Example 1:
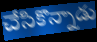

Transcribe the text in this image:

చేసికొన్నాడు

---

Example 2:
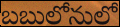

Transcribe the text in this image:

బబులోనులో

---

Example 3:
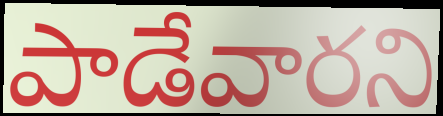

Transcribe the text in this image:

పాడేవారని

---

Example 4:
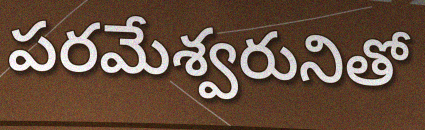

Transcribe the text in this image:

పరమేశ్వరునితో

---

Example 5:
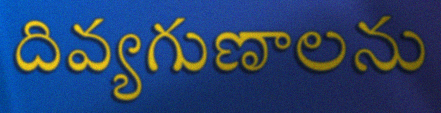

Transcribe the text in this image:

దివ్యగుణాలను